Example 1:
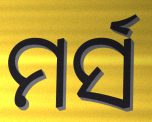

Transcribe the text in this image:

ମର୍ସ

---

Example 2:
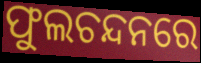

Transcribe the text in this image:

ଫୁଲଚନ୍ଦନରେ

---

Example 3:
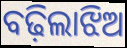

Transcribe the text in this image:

ବଢ଼ିଲାଝିଅ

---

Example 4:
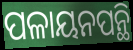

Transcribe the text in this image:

ପଳାୟନପନ୍ଥି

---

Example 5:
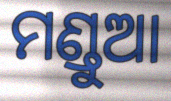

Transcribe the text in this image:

ମଣ୍ଡୁଆ